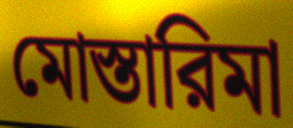
মোস্তারিমা